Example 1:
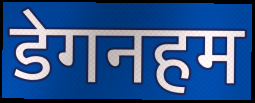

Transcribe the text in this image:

डेगनहम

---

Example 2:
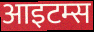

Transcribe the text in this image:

आइटम्‍स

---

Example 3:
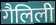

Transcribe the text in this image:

गैलिली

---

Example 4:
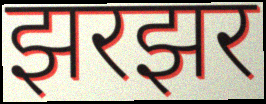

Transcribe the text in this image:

झरझर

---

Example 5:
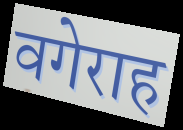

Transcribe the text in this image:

वगेराह